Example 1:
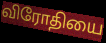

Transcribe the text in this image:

விரோதியை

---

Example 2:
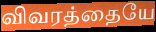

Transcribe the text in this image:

விவரத்தையே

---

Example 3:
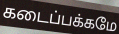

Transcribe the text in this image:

கடைப்பக்கமே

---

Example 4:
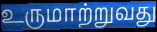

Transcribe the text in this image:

உருமாற்றுவது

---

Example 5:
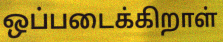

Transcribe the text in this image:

ஒப்படைக்கிறாள்